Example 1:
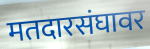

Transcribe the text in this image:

मतदारसंघावर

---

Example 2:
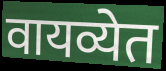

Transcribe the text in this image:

वायव्येत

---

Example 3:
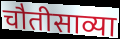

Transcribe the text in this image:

चौतीसाव्या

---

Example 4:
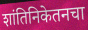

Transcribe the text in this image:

शांतिनिकेतनचा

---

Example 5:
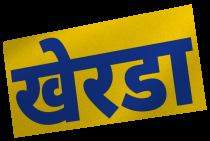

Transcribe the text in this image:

खेरडा